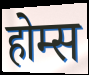
होम्स